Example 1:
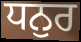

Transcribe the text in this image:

ਧਨੁਰ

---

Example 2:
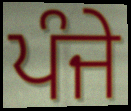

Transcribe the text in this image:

ਪੰਜੇ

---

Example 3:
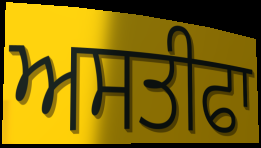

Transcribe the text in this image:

ਅਸਤੀਫਾ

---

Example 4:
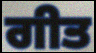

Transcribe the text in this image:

ਗੀਤ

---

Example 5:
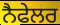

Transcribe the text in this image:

ਨੈਫੇਲਰ